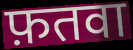
फ़तवा